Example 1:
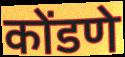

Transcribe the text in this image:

कोंडणे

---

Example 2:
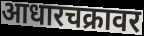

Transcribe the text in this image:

आधारचक्रावर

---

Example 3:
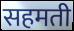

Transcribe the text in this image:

सहमती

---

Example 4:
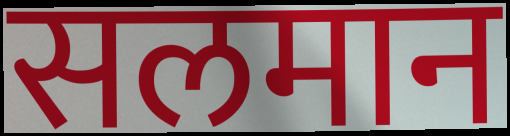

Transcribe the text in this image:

सलमान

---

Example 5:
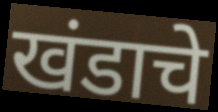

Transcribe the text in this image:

खंडाचे